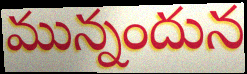
మున్నందున